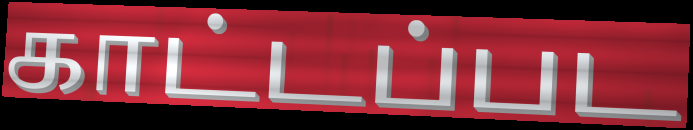
காட்டப்பட